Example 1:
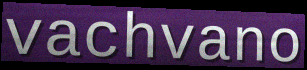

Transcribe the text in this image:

vachvano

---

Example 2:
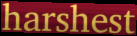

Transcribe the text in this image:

harshest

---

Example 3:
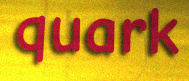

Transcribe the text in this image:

quark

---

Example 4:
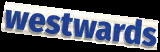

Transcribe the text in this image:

westwards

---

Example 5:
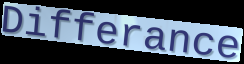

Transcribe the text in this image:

Differance